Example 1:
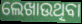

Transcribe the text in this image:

ଲେଖାଉଥିବା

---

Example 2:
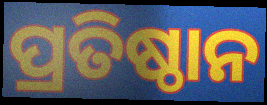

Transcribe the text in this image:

ପ୍ରତିଷ୍ଠାନ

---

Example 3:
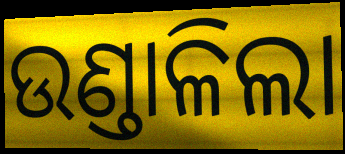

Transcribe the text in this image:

ଉଣ୍ଡାଳିଲା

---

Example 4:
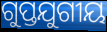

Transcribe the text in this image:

ଗୁପ୍ତଯୁଗୀୟ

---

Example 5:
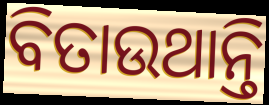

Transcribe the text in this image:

ବିତାଉଥାନ୍ତି